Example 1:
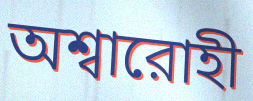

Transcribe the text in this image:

অশ্বারোহী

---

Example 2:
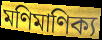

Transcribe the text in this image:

মণিমাণিক্য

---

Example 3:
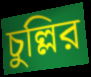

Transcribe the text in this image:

চুল্লির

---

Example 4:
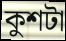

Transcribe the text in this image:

কুশটা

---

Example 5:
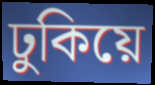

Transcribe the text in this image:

ঢুকিয়ে